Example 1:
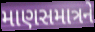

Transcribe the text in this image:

માણસમાત્રને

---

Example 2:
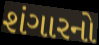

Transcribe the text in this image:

શંગારનો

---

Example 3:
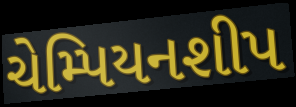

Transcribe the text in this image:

ચેમ્પિયનશીપ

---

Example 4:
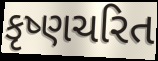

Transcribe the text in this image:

કૃષ્ણચરિત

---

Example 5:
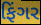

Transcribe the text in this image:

ફિંગર